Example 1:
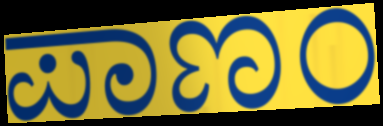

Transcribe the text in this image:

ಪಾಣಂ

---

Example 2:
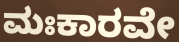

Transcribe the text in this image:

ಮಃಕಾರವೇ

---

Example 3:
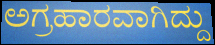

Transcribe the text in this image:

ಅಗ್ರಹಾರವಾಗಿದ್ದು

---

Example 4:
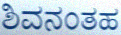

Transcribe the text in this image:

ಶಿವನಂತಹ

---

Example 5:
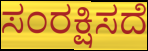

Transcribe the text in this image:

ಸಂರಕ್ಷಿಸದೆ